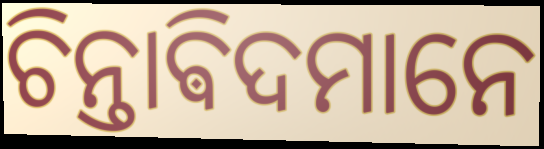
ଚିନ୍ତାଵିଦମାନେ